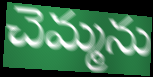
చెమ్మను